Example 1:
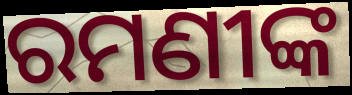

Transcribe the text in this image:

ରମଣୀଙ୍କ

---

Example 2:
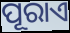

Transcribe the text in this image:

ପୂରାଏ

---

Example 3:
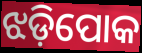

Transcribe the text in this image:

ଝଡ଼ିପୋକ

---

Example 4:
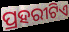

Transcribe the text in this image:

ପ୍ରହରୀଟିଏ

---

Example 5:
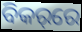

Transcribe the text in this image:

ବିକର୍‌ରେ